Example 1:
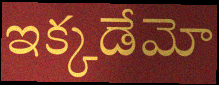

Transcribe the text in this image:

ఇక్కడేమో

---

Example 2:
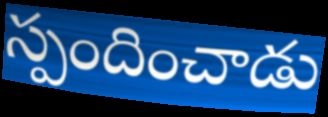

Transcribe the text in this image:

స్పందించాడు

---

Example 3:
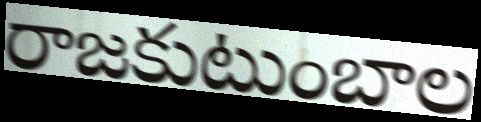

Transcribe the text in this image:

రాజకుటుంబాల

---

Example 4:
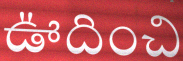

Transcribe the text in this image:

ఊదించి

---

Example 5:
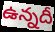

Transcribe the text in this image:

ఉన్నదీ